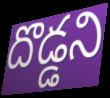
దొడ్డని